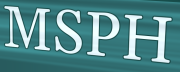
MSPH